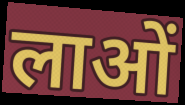
लाओं